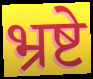
भ्रष्टे